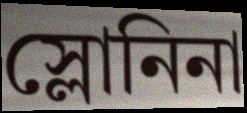
স্লোনিনা